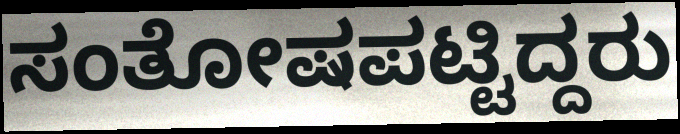
ಸಂತೋಷಪಟ್ಟಿದ್ದರು